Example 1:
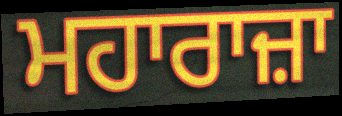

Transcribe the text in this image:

ਮਹਾਰਾਜ਼ਾ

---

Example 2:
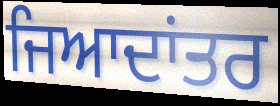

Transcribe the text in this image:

ਜਿਆਦਾਂਤਰ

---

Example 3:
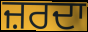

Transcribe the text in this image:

ਜ਼ਰਦਾ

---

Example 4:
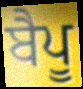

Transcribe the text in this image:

ਬੈਪੂ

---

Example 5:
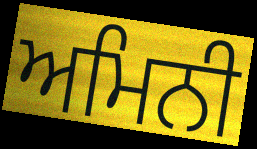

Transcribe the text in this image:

ਅਮਿਨੀ